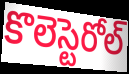
కొలెస్టెరోల్